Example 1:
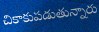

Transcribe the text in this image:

చికాకుపడుతున్నారు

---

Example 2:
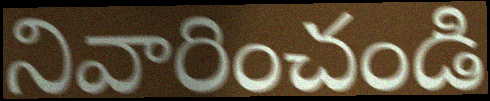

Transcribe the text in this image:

నివారించండి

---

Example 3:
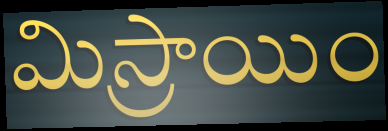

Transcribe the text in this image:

మిస్రాయిం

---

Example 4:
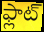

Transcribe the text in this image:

ఫ్లాట్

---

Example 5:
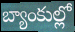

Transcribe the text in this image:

బ్యాంకుల్లో